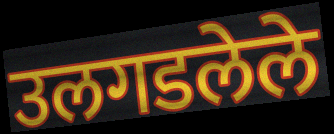
उलगडलेले